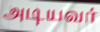
அடியவர்